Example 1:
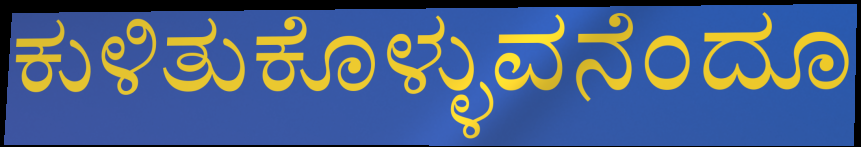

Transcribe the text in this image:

ಕುಳಿತುಕೊಳ್ಳುವನೆಂದೂ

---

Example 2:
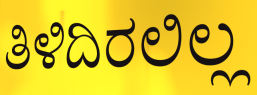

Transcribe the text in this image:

ತಿಳಿದಿರಲಿಲ್ಲ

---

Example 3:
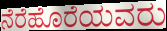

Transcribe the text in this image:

ನೆರೆಹೊರೆಯವರು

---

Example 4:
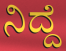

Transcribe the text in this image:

ನಿದ್ದೆ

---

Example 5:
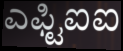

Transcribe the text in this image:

ಎಫ್ಟಿಐಐ